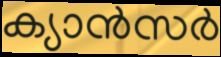
ക്യാൻസർ